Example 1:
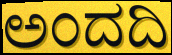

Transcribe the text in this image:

ಅಂದದಿ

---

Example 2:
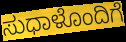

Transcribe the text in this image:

ಸುಧಾಳೊಂದಿಗೆ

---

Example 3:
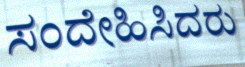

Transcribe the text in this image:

ಸಂದೇಹಿಸಿದರು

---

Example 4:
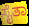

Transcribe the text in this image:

ಸೈತಾ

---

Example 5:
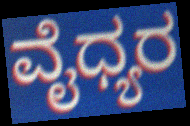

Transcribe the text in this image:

ವೈಧ್ಯರ